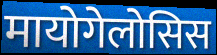
मायोगेलोसिस